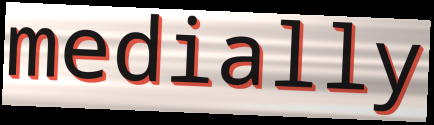
medially